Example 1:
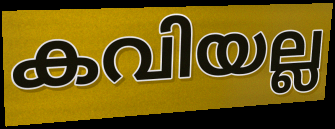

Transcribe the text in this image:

കവിയല്ല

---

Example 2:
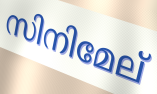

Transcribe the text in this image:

സിനിമേല്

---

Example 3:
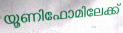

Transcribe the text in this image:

യൂണിഫോമിലേക്ക്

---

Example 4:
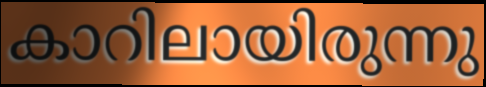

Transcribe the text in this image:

കാറിലായിരുന്നു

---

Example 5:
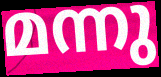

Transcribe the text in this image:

മന്നു